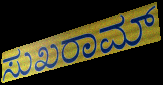
ಸುಖರಾಮ್